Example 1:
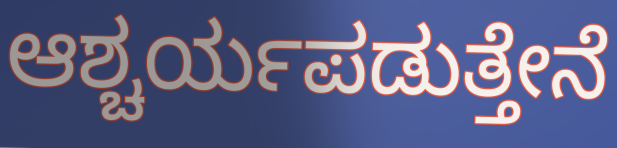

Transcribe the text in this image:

ಆಶ್ಚರ್ಯಪಡುತ್ತೇನೆ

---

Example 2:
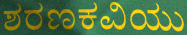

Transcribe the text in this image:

ಶರಣಕವಿಯು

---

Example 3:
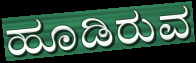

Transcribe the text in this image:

ಹೂಡಿರುವ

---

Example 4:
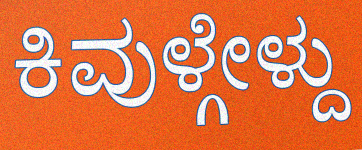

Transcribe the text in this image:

ಕಿವುಳ್ಗೇಳ್ದು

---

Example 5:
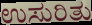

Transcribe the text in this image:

ಉಸುರಿತು